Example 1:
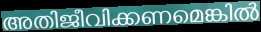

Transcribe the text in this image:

അതിജീവിക്കണമെങ്കിൽ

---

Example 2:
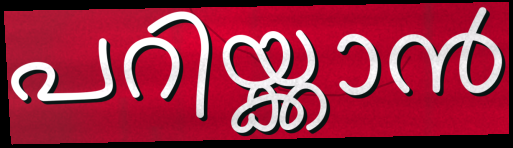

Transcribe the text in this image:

പറിയ്ക്കാൻ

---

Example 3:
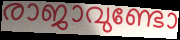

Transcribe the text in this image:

രാജാവുണ്ടോ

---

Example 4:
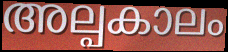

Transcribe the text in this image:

അല്പകാലം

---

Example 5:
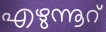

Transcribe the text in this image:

എഴുന്നൂറ്